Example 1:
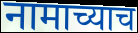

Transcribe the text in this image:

नामाच्याच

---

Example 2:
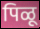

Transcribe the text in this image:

पिळू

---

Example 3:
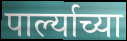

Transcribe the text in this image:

पार्ल्याच्या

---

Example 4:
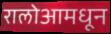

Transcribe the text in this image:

रालोआमधून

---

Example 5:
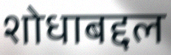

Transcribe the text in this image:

शोधाबद्दल